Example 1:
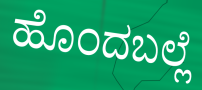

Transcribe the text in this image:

ಹೊಂದಬಲ್ಲೆ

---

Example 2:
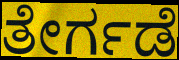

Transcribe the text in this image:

ತೇರ್ಗಡೆ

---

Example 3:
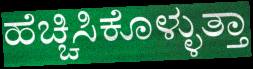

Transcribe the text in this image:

ಹೆಚ್ಚಿಸಿಕೊಳ್ಳುತ್ತಾ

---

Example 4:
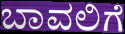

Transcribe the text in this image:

ಬಾವಲಿಗೆ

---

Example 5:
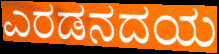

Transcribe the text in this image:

ಎರಡನದಯ